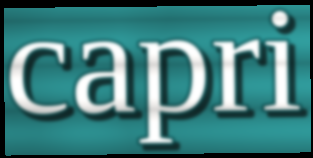
capri